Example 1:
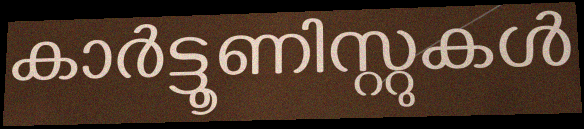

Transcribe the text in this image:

കാർട്ടൂണിസ്റ്റുകൾ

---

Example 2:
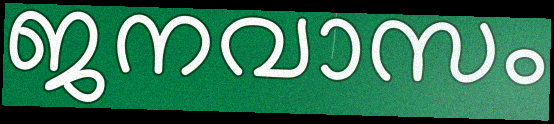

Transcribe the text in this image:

ജനവാസം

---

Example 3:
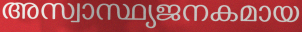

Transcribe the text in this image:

അസ്വാസ്ഥ്യജനകമായ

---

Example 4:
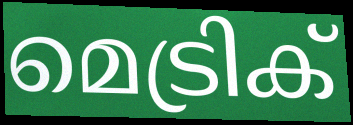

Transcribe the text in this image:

മെട്രിക്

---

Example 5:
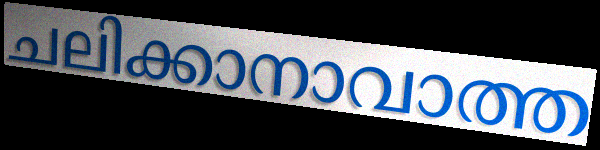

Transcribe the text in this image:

ചലിക്കാനാവാത്ത